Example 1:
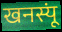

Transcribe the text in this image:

खनस्यूं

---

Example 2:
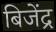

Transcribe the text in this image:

बिजेंद्र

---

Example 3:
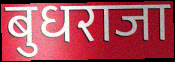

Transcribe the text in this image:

बुधराजा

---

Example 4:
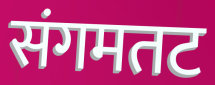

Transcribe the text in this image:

संगमतट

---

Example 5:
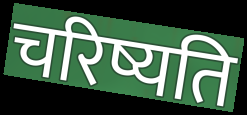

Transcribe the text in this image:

चरिष्यति